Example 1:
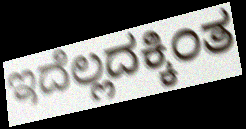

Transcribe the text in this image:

ಇದೆಲ್ಲದಕ್ಕಿಂತ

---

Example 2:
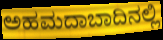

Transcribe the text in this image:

ಅಹಮದಾಬಾದಿನಲ್ಲಿ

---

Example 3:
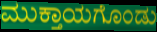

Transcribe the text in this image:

ಮುಕ್ತಾಯಗೊಂಡು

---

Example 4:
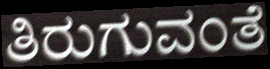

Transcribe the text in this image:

ತಿರುಗುವಂತೆ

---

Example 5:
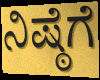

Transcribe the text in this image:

ನಿಷ್ಠೆಗೆ